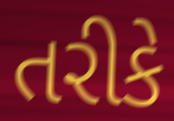
તરીકે